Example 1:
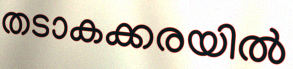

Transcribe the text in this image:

തടാകക്കരയിൽ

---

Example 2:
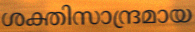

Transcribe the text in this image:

ശക്തിസാന്ദ്രമായ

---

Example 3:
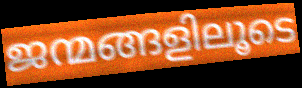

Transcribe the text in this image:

ജന്മങ്ങളിലൂടെ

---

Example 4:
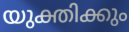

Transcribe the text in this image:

യുക്തിക്കും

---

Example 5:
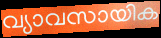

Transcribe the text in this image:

വ്യാവസായിക